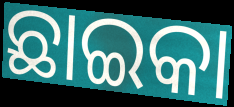
ଛାଇକା